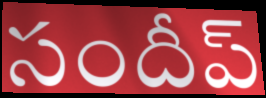
సందీప్